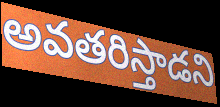
అవతరిస్తాడని